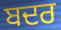
ਬਦਰ